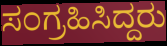
ಸಂಗ್ರಹಿಸಿದ್ದರು